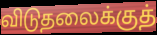
விடுதலைக்குத்